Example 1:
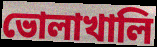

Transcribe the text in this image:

ভোলাখালি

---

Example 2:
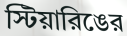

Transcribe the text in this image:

স্টিয়ারিঙের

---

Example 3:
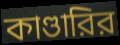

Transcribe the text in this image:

কাণ্ডারির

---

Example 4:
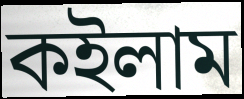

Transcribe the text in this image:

কইলাম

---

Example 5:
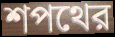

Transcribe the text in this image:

শপথের